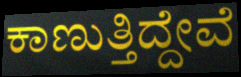
ಕಾಣುತ್ತಿದ್ದೇವೆ